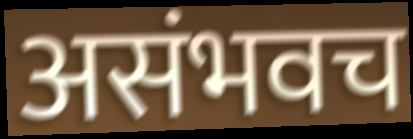
असंभवच